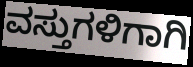
ವಸ್ತುಗಳಿಗಾಗಿ